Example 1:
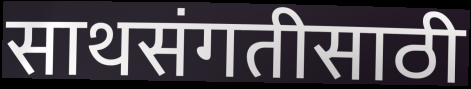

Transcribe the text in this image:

साथसंगतीसाठी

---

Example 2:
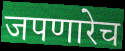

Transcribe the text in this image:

जपणारेच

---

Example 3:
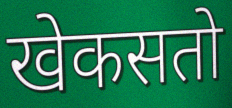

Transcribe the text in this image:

खेकसतो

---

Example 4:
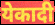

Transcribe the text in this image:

येकादी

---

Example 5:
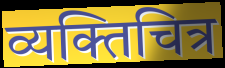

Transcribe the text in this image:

व्यक्तिचित्र